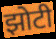
झोटी